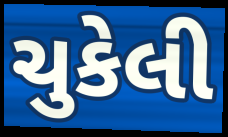
ચુકેલી